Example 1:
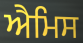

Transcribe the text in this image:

ਐਮਿਸ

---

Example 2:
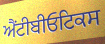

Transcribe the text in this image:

ਐਂਟੀਬੀਓਟਿਕਸ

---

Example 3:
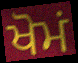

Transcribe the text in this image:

ਖੋਮਂ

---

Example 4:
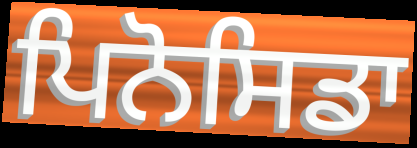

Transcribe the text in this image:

ਪਿਨੋਸਿਡਾ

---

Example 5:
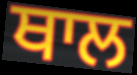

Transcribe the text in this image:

ਥਾਲ